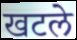
खटले